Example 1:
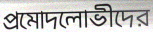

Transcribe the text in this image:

প্রমোদলোভীদের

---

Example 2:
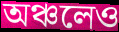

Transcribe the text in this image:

অঞ্চলেও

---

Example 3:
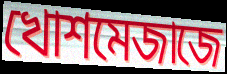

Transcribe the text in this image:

খোশমেজাজে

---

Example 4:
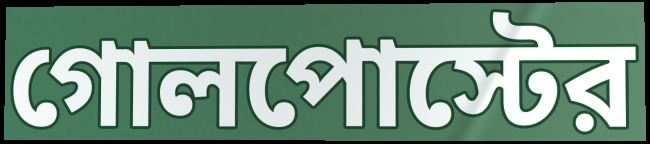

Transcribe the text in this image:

গোলপোস্টের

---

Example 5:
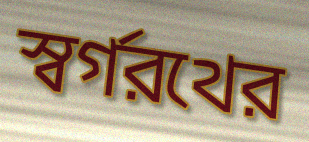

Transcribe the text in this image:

স্বর্গরথের